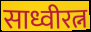
साध्वीरत्न